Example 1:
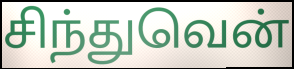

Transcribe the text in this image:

சிந்துவென்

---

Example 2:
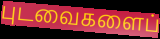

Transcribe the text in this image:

புடவைகளைப்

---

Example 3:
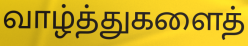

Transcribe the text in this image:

வாழ்த்துகளைத்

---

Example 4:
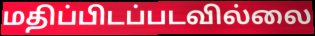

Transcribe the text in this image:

மதிப்பிடப்படவில்லை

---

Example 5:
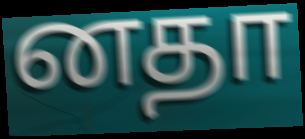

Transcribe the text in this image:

னதா